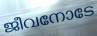
ജീവനോടേ